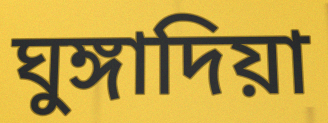
ঘুঙ্গাদিয়া